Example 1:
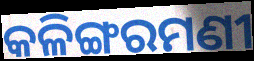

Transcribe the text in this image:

କଳିଙ୍ଗରମଣୀ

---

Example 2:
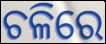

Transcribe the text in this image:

ଚଳିରେ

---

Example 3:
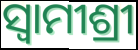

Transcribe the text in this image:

ସ୍ଵାମୀଶ୍ରୀ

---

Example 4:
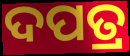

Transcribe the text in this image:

ଦପତ୍ର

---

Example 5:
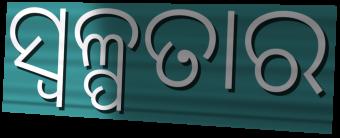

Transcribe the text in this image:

ସ୍ଵଳ୍ପତାର